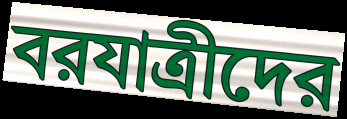
বরযাত্রীদের